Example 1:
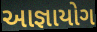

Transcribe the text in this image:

આજ્ઞાયોગ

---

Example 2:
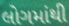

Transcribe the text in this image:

લોગમાંથી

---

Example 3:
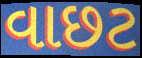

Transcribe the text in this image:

વાછટ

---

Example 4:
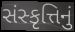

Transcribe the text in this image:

સંસ્કૃત્તિનું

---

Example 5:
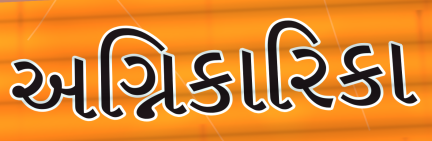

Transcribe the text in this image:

અગ્નિકારિકા